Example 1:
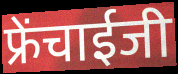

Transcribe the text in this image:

फ्रेंचाईजी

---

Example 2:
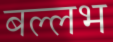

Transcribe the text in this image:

बल्लभ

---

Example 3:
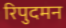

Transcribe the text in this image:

रिपुदमन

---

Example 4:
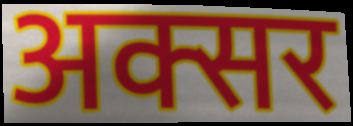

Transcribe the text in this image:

अक्सर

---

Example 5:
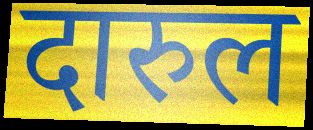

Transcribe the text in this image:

दारुल